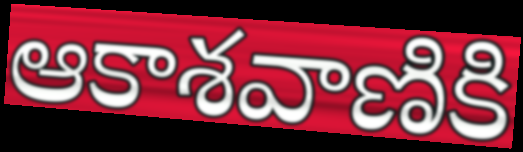
ఆకాశవాణికి